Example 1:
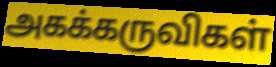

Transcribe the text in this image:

அகக்கருவிகள்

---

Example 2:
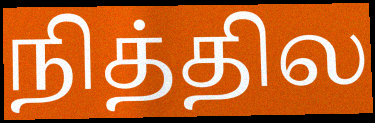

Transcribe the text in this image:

நித்தில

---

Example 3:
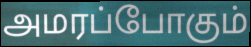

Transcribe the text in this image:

அமரப்போகும்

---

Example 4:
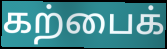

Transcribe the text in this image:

கற்பைக்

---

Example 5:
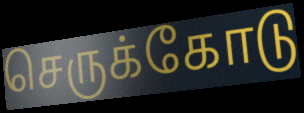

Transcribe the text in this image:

செருக்கோடு